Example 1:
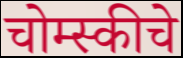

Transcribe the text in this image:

चोम्स्कीचे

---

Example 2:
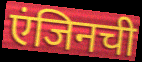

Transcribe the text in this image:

एंजिनची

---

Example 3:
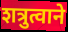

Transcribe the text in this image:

शत्रुत्वाने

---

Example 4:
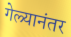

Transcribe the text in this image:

गेल्यानंतर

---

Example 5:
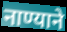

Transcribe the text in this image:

नाण्याने